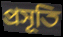
প্ৰসূতি